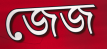
জেজ